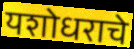
यशोधराचे